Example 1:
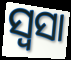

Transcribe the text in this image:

ସ୍ୱସା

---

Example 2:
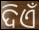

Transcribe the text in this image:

ଦିଏଁ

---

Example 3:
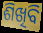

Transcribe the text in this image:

ଶିଖିବି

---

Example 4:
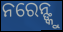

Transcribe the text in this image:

ନରେନ୍ଙ୍କୁ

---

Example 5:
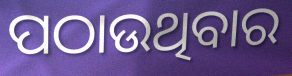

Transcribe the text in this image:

ପଠାଉଥିବାର